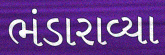
ભંડારાવ્યા